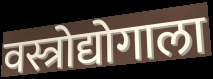
वस्त्रोद्योगाला